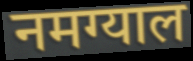
नमग्याल